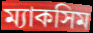
ম্যাকসিম